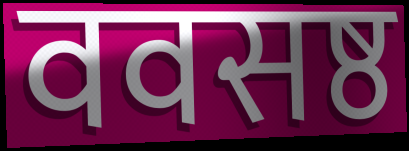
ववसष्ठ